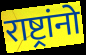
राष्ट्रांनो